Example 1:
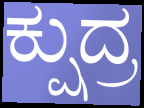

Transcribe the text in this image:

ಕ್ಷುದ್ರ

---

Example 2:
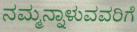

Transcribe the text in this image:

ನಮ್ಮನ್ನಾಳುವವರಿಗೆ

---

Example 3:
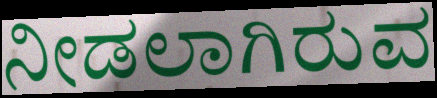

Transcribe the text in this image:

ನೀಡಲಾಗಿರುವ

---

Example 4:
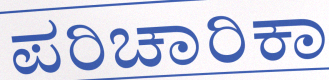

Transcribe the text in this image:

ಪರಿಚಾರಿಕಾ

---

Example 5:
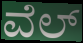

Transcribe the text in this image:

ವೆಲ್